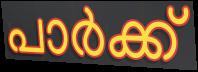
പാർക്ക്